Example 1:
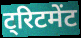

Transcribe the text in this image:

ट्रिटमेंट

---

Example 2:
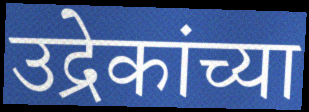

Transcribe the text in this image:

उद्रेकांच्या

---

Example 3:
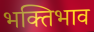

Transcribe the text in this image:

भक्तिभाव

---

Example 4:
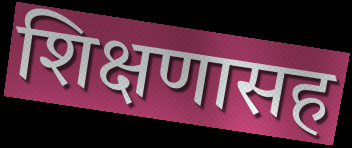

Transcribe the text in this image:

शिक्षणासह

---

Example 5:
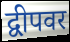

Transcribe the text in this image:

द्वीपवर